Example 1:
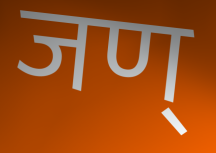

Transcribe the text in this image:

जण्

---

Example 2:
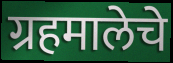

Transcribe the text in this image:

ग्रहमालेचे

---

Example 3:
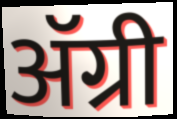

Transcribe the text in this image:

ॲग्री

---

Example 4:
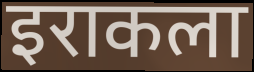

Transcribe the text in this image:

इराकला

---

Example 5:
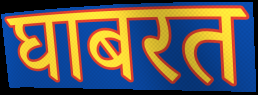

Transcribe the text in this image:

घाबरत